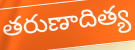
తరుణాదిత్య